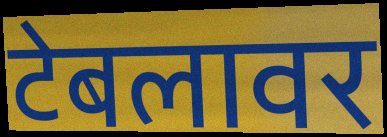
टेबलावर